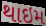
થાઇમ